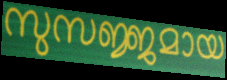
സുസജ്ജമായ